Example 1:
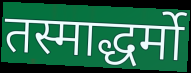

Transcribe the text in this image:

तस्माद्धर्मो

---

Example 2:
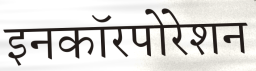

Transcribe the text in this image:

इनकॉरपोरेशन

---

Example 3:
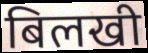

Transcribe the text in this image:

बिलखी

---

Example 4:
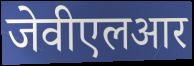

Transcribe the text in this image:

जेवीएलआर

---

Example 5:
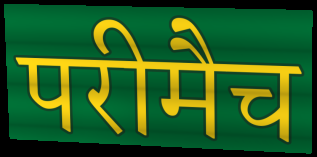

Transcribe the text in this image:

परीमैच